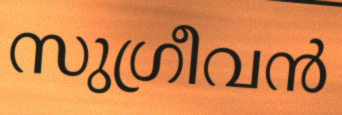
സുഗ്രീവൻ